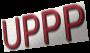
UPPP